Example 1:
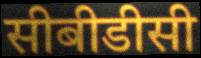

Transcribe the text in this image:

सीबीडीसी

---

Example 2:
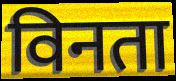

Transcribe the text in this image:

विनता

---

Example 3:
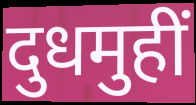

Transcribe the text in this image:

दुधमुहीं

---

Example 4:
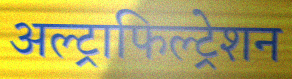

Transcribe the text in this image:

अल्ट्राफिल्ट्रेशन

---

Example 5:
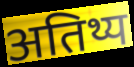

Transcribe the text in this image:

अतिथ्य